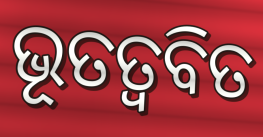
ଭୂତତ୍ଵବିତ